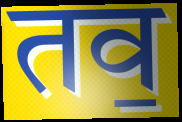
तव॒